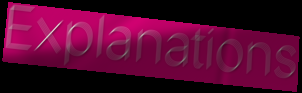
Explanations